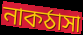
নাকঠাসা